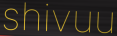
shivuu